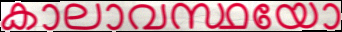
കാലാവസ്ഥയോ